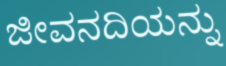
ಜೀವನದಿಯನ್ನು